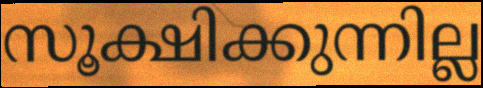
സൂക്ഷിക്കുന്നില്ല